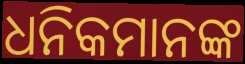
ଧନିକମାନଙ୍କ